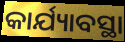
କାର୍ଯ୍ୟାବସ୍ଥା